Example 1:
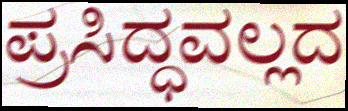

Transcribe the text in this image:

ಪ್ರಸಿದ್ಧವಲ್ಲದ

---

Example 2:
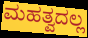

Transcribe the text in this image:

ಮಹತ್ವದಲ್ಲ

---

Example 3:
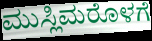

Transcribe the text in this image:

ಮುಸ್ಲಿಮರೊಳಗೆ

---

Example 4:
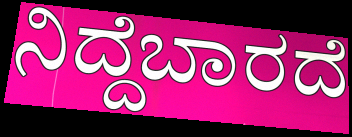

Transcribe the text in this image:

ನಿದ್ದೆಬಾರದೆ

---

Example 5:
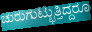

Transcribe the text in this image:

ಚುರುಗುಟ್ಟುತ್ತಿದ್ದರೂ